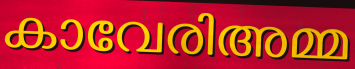
കാവേരിഅമ്മ